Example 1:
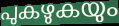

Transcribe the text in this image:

പുകഴുകയും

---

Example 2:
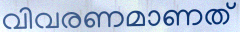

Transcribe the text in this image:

വിവരണമാണത്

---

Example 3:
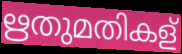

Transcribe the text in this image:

ഋതുമതികള്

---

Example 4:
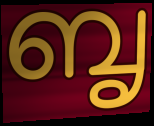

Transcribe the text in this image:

ബൃ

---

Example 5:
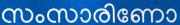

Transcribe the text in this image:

സംസാരിണോ